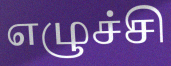
எழுச்சி